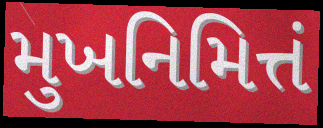
મુખનિમિત્તં